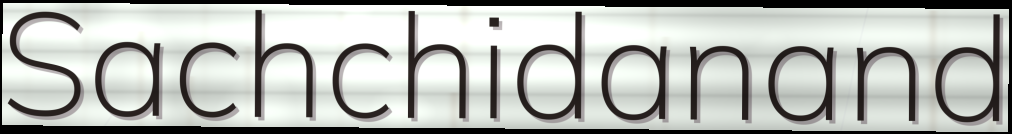
Sachchidanand